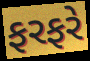
ફરફરે